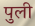
पुली